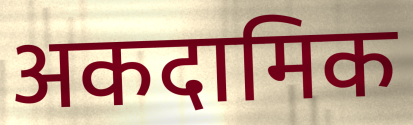
अकदामिक